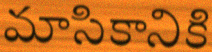
మాసికానికి